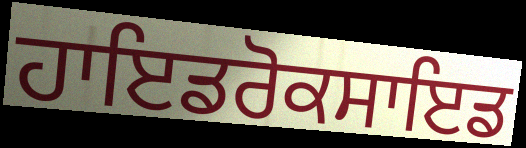
ਹਾਇਡਰੋਕਸਾਇਡ